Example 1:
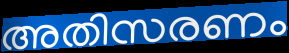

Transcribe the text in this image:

അതിസരണം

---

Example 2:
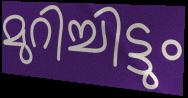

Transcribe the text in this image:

മുറിച്ചിട്ടും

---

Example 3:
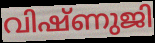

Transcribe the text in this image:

വിഷ്ണുജി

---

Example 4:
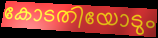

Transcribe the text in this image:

കോടതിയോടും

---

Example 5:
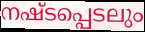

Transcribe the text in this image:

നഷ്ടപ്പെടലും